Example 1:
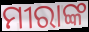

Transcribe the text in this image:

ମୀରାଙ୍କ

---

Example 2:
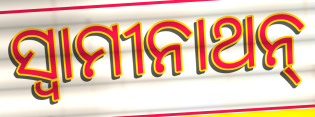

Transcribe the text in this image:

ସ୍ୱାମୀନାଥନ୍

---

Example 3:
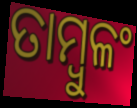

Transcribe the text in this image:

ତାମ୍ବୁଳଂ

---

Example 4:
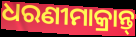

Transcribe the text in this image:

ଧରଣୀମାକ୍ରାନ୍ତ୍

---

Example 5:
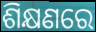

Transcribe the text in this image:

ଶିକ୍ଷଣରେ